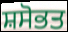
ਸ਼ਸੋਭਤ